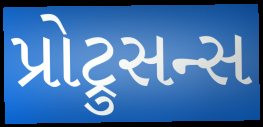
પ્રોટ્રુસન્સ